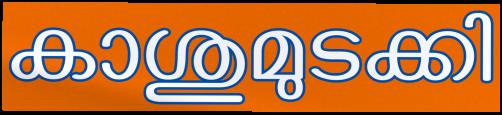
കാശുമുടക്കി